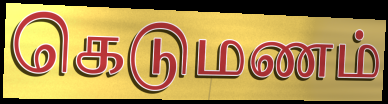
கெடுமணம்